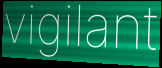
vigilant